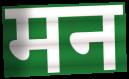
मन